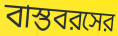
বাস্তবরসের